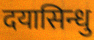
दयासिन्धु